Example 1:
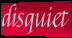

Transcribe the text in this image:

disquiet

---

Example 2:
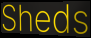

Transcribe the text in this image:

Sheds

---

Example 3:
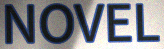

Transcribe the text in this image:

NOVEL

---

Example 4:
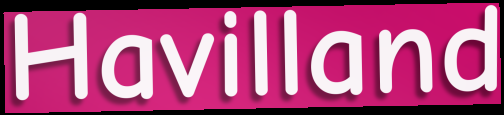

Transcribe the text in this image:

Havilland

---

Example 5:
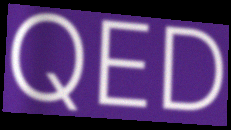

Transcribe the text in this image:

QED